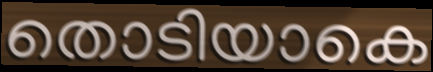
തൊടിയാകെ